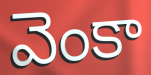
వెంకా